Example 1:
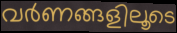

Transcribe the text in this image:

വർണങ്ങളിലൂടെ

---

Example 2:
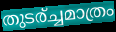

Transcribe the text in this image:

തുടര്ച്ചമാത്രം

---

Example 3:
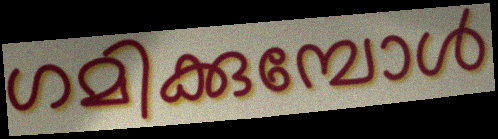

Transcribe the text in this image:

ഗമിക്കുമ്പോൾ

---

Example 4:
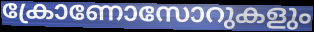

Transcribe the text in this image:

ക്രോണോസോറുകളും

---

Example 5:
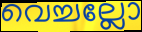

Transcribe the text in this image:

വെച്ചല്ലോ